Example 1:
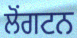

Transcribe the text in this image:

ਲੋਂਗਟਨ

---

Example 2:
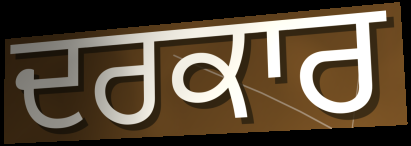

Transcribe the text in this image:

ਦਰਕਾਰ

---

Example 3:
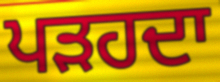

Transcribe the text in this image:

ਪੜਹਦਾ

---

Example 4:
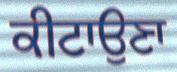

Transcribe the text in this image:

ਕੀਟਾਉਣਾ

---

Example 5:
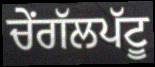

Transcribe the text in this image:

ਚੇਂਗੱਲਪੱਟੂ